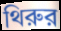
থিরুর